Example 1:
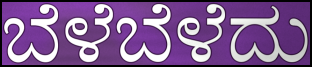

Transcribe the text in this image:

ಬೆಳೆಬೆಳೆದು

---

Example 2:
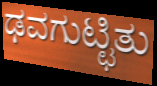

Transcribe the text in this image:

ಢವಗುಟ್ಟಿತು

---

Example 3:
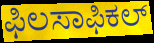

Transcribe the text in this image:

ಫಿಲಸಾಫಿಕಲ್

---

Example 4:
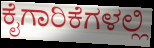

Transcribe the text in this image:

ಕೈಗಾರಿಕೆಗಳಲ್ಲಿ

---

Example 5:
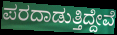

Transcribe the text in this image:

ಪರದಾಡುತ್ತಿದ್ದೇವೆ